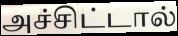
அச்சிட்டால்